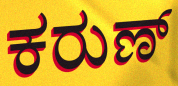
ಕರುಣ್